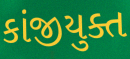
કાંજીયુક્ત